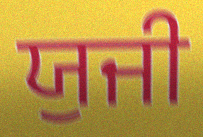
ਯੁਜੀ